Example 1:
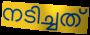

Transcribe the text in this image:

നടിച്ചത്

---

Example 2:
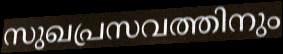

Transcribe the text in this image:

സുഖപ്രസവത്തിനും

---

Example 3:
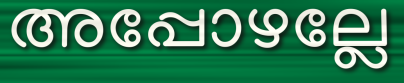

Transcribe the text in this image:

അപ്പോഴല്ലേ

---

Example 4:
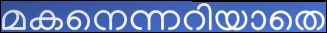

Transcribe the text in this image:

മകനെന്നറിയാതെ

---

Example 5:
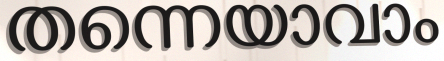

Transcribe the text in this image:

തന്നെയാവാം